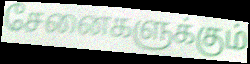
சேனைகளுக்கும்